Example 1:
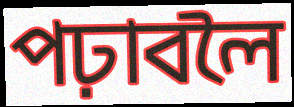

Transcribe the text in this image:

পঢ়াবলৈ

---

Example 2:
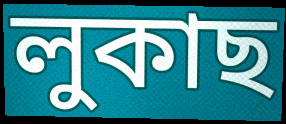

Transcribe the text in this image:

লুকাছ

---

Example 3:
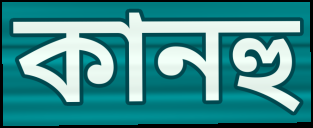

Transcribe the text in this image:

কানহু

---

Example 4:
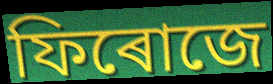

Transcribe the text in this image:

ফিৰোজে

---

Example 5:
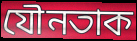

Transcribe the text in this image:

যৌনতাক